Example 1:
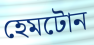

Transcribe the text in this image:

হেমটোন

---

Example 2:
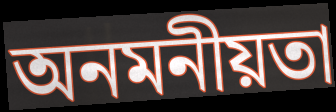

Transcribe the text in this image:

অনমনীয়তা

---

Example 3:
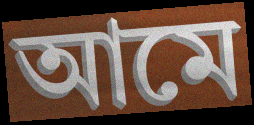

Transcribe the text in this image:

আমে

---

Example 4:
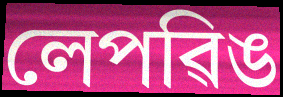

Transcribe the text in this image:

লেপৱিঙ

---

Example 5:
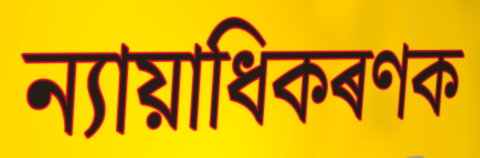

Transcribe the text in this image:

ন্যায়াধিকৰণক